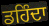
ਡਹਿੰਦਾ